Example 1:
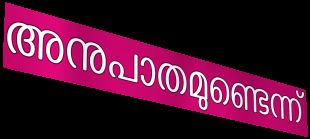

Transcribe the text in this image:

അനുപാതമുണ്ടെന്ന്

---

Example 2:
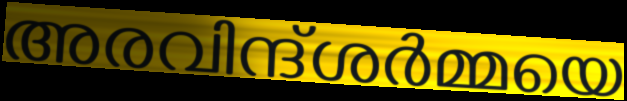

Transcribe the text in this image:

അരവിന്ദ്ശർമ്മയെ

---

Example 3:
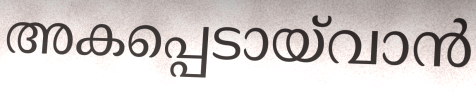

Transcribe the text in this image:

അകപ്പെടായ്‌വാൻ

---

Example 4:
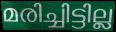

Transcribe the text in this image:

മരിച്ചിട്ടില്ല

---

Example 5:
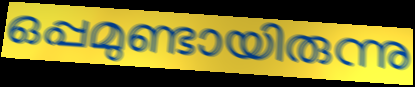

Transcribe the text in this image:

ഒപ്പമുണ്ടായിരുന്നു